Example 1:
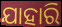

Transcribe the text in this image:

ଯାହାରି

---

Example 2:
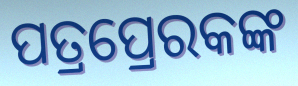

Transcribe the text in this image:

ପତ୍ରପ୍ରେରକଙ୍କ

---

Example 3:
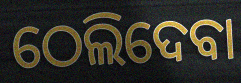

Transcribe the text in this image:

ଠେଲିଦେବା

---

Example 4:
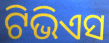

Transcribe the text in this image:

ଟିଭିଏସ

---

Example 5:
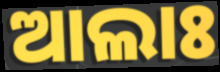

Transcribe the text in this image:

ଆଲାଃ